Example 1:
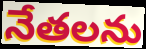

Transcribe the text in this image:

నేతలను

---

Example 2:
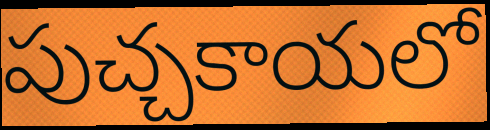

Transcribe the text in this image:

పుచ్చకాయలో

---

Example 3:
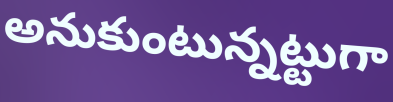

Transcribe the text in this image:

అనుకుంటున్నట్టుగా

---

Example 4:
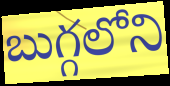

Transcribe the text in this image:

బుగ్గలోని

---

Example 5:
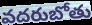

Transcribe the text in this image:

వదరుబోతు